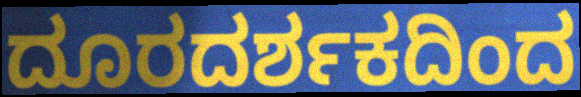
ದೂರದರ್ಶಕದಿಂದ